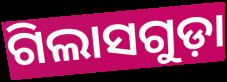
ଗିଲାସଗୁଡ଼ା